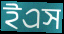
ইএস